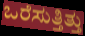
ಒರೆಸುತ್ತಿತ್ತು